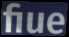
fiue